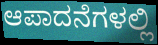
ಆಪಾದನೆಗಳಲ್ಲಿ